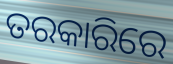
ତରକାରିରେ